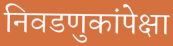
निवडणुकांपेक्षा